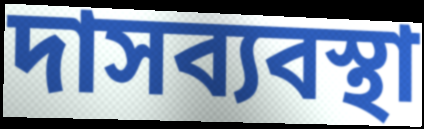
দাসব্যবস্থা